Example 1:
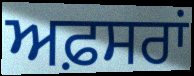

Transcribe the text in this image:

ਅਫ਼ਸਰਾਂ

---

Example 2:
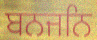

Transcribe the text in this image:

ਬਨਜਨਿ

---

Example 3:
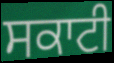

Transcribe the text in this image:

ਸਕਾਟੀ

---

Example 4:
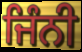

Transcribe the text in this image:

ਜਿੰਨੀ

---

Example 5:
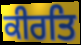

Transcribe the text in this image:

ਕੀਰਤਿ